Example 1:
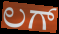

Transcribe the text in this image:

ಲಗ್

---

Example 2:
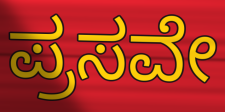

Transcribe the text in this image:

ಪ್ರಸವೇ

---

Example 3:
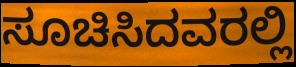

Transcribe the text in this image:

ಸೂಚಿಸಿದವರಲ್ಲಿ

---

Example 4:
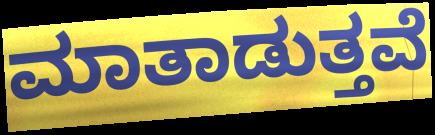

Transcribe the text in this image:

ಮಾತಾಡುತ್ತವೆ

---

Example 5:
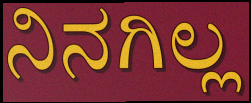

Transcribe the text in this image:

ನಿನಗಿಲ್ಲ